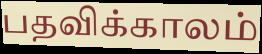
பதவிக்காலம்